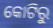
କୋଟିରୁ